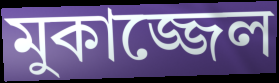
মুকাজ্জেল